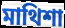
মাথিশা